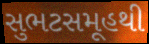
સુભટસમૂહથી